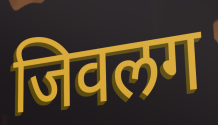
जिवलग